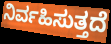
ನಿರ್ವಹಿಸುತ್ತದೆ